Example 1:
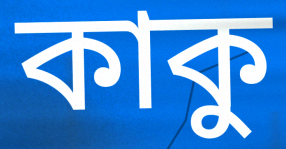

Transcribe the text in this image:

কাকু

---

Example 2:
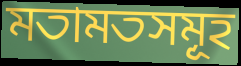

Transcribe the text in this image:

মতামতসমূহ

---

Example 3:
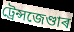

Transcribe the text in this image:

ট্ৰেন্সজেণ্ডাৰ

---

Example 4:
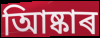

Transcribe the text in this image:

আিষ্কাৰ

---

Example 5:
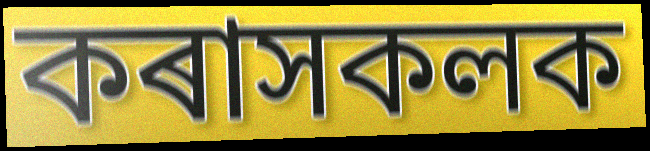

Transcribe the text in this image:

কৰাসকলক